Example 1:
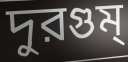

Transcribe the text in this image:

দুরগুম্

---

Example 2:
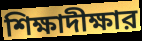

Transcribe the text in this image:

শিক্ষাদীক্ষার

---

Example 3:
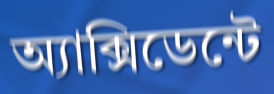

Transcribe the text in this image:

অ্যাক্সিডেন্টে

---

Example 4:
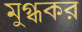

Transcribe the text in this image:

মুগ্ধকর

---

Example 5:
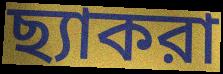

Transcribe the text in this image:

ছ্যাকরা